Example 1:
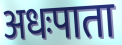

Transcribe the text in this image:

अधःपाता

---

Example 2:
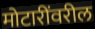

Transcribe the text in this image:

मोटारींवरील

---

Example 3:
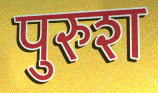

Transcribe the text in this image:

पुरुश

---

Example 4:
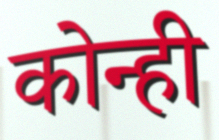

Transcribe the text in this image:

कोन्ही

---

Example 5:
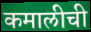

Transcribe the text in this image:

कमालीची